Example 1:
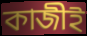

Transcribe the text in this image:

কাজীই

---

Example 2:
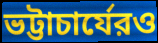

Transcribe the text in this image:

ভট্টাচার্যেরও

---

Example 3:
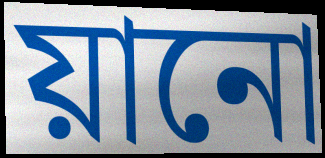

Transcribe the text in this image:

য়ানো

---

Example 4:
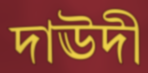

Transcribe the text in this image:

দাঊদী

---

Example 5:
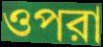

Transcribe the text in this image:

ওপরা